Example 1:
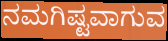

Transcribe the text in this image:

ನಮಗಿಷ್ಟವಾಗುವ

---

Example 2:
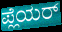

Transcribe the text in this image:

ಪ್ಲೆಯರ್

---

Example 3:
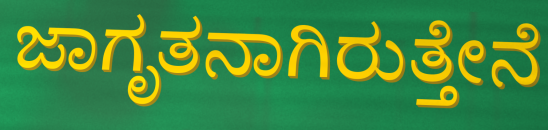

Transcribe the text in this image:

ಜಾಗೃತನಾಗಿರುತ್ತೇನೆ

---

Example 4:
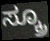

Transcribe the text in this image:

ಸ್ಕ್ರೂ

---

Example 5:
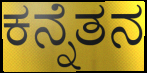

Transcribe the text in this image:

ಕನ್ನೆತನ